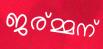
ജര്മ്മന്